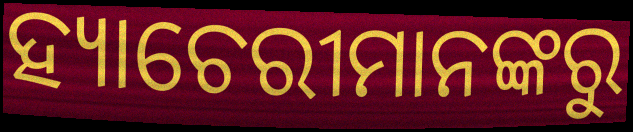
ହ୍ୟାଚେରୀମାନଙ୍କରୁ